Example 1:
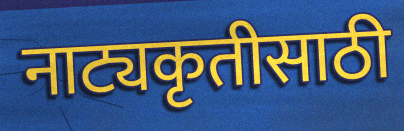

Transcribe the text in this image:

नाट्यकृतीसाठी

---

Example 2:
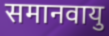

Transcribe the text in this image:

समानवायु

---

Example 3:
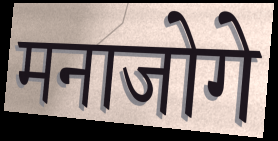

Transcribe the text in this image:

मनाजोगे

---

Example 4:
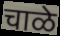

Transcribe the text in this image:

चाळे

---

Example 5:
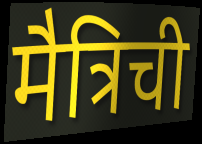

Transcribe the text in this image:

मैत्रिची